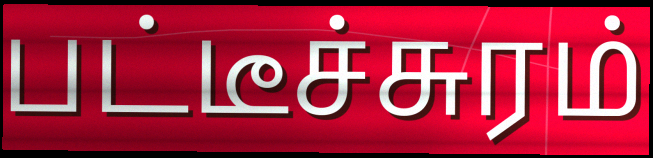
பட்டீச்சுரம்